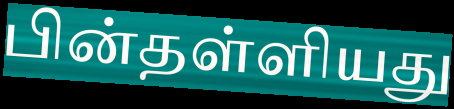
பின்தள்ளியது